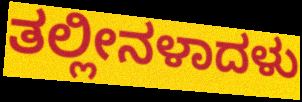
ತಲ್ಲೀನಳಾದಳು